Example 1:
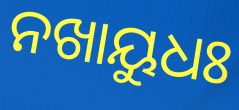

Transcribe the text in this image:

ନଖାୟୁଧଃ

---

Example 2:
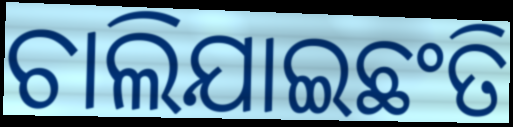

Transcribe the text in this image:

ଚାଲିଯାଇଛଂତି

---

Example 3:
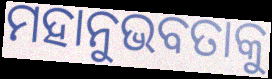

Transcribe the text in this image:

ମହାନୁଭବତାକୁ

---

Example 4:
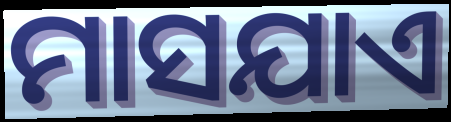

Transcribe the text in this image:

ମାସଯାଏ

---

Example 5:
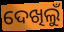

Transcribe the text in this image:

ଦେଖିଲୁଁ